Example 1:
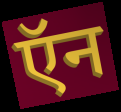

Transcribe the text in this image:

ऍन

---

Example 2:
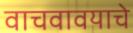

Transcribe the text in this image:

वाचवावयाचे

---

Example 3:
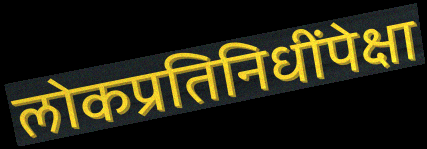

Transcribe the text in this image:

लोकप्रतिनिधींपेक्षा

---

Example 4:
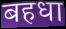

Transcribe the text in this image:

बहधा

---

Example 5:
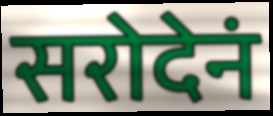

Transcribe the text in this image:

सरोदेनं